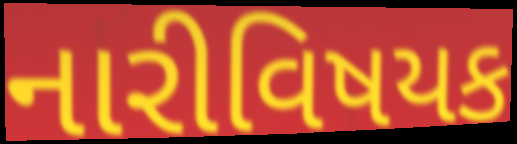
નારીવિષયક